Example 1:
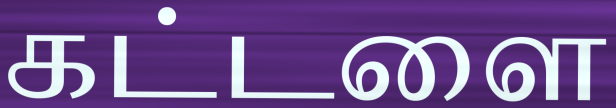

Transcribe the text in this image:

கட்டளை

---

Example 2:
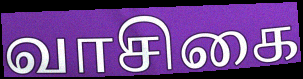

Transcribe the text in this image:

வாசிகை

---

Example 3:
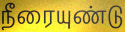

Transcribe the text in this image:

நீரையுண்டு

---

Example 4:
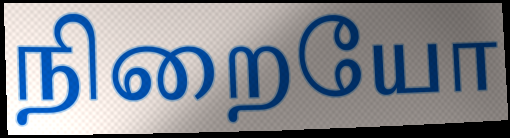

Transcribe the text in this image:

நிறையோ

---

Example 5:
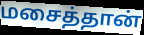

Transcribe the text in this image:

மசைத்தான்